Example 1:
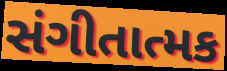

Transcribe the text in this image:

સંગીતાત્મક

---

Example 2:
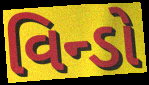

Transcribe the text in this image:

વિન્ડો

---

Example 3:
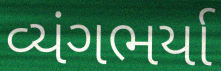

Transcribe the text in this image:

વ્યંગભર્યા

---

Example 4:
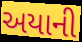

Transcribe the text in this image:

અયાની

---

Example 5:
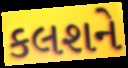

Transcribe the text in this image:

કલશને